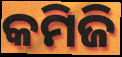
କମିଜି